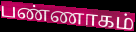
பண்ணாகம்